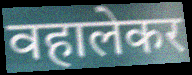
वहालेकर